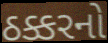
ઠક્કરનો